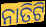
ନାତିଟି